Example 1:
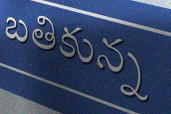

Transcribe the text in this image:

బతికున్న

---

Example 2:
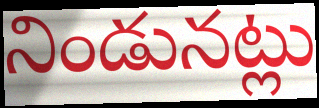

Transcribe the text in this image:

నిండునట్లు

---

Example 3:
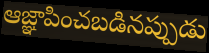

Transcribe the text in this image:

ఆజ్ఞాపించబడినప్పుడు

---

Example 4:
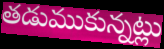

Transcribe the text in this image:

తడుముకున్నట్లు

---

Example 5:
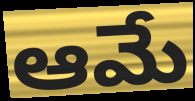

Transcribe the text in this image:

ఆమే